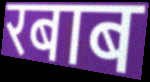
रबाब